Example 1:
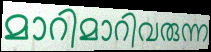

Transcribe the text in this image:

മാറിമാറിവരുന്ന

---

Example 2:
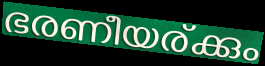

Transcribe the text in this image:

ഭരണീയര്ക്കും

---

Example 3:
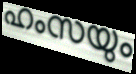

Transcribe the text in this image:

ഹംസയും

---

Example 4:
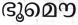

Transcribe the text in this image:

ഭൂമൌ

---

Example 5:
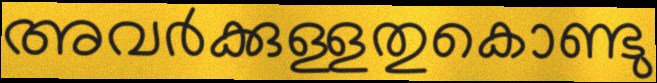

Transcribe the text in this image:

അവർക്കുള്ളതുകൊണ്ടു